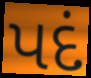
પદં